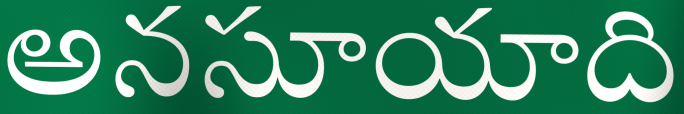
అనసూయాది